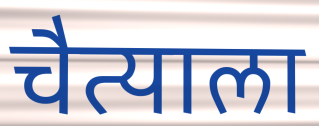
चैत्याला